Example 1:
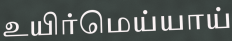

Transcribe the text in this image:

உயிர்மெய்யாய்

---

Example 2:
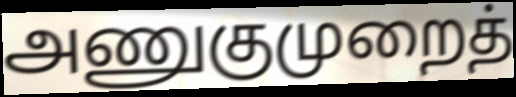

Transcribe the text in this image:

அணுகுமுறைத்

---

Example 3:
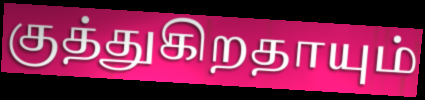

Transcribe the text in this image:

குத்துகிறதாயும்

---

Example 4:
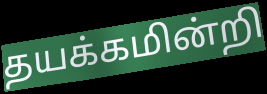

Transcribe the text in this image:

தயக்கமின்றி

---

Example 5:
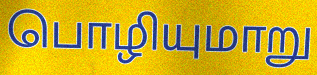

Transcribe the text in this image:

பொழியுமாறு